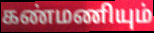
கண்மணியும்